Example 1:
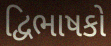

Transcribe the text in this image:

દ્વિભાષકો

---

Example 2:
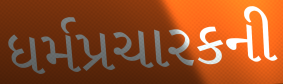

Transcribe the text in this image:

ધર્મપ્રચારકની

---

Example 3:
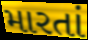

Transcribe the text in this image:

મારતાં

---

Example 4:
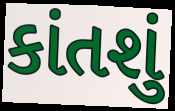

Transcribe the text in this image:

કાંતશું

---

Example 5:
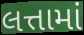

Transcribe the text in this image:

લત્તામાં